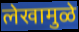
लेखामुळे